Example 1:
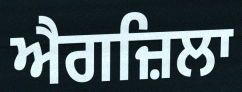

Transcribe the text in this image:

ਐਗਜ਼ਿਲਾ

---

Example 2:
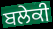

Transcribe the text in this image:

ਬਲੇਕੀ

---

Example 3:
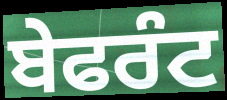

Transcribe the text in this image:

ਬੇਫਰੰਟ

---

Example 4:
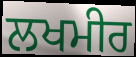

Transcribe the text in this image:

ਲਖਮੀਰ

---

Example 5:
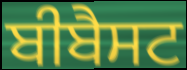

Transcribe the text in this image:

ਬੀਬੈਸਟ